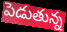
పెడుతున్న